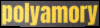
polyamory